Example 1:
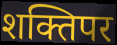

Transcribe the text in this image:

शक्तिपर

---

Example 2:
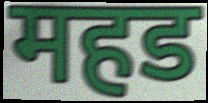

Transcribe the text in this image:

महड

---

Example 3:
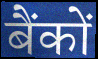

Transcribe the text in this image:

बैंकों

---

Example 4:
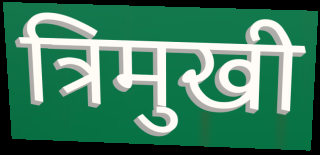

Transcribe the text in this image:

त्रिमुखी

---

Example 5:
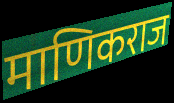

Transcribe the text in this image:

माणिकराज